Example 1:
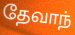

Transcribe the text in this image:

தேவாந்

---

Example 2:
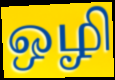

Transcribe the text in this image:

ஒழி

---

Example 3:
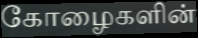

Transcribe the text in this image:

கோழைகளின்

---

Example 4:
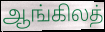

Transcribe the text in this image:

ஆங்கிலத்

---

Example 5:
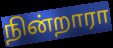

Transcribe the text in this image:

நின்றாரா